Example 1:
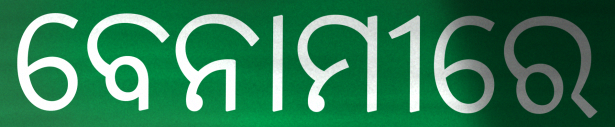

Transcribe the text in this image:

ବେନାମୀରେ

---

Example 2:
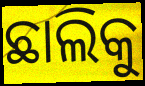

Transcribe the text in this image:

ଛାଲିକୁ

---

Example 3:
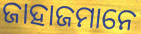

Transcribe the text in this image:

ଜାହାଜମାନେ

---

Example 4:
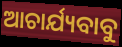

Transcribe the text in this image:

ଆଚାର୍ଯ୍ୟବାବୁ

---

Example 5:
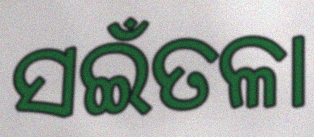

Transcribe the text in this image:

ସଇଁତଳା